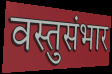
वस्तुसंभार